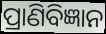
ପ୍ରାଣିବିଜ୍ଞାନ